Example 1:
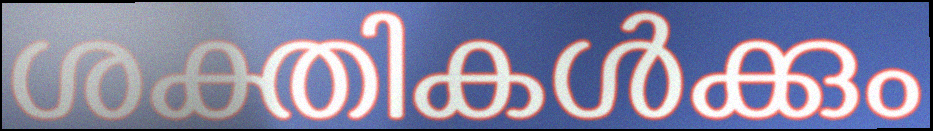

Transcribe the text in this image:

ശക്തികൾക്കും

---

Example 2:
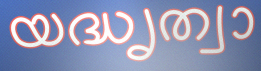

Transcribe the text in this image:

യദ്ധൃത്വാ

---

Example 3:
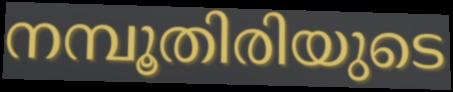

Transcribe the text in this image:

നമ്പൂതിരിയുടെ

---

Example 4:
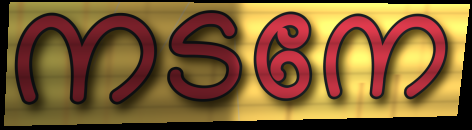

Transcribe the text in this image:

നടനേ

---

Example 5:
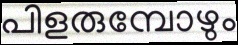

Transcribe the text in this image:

പിളരുമ്പോഴും